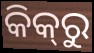
କିକ୍‍ରୁ